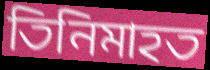
তিনিমাহত